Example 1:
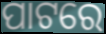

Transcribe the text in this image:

ପାଟରେ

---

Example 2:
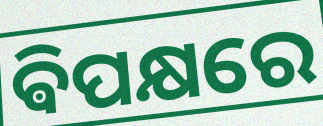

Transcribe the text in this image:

ଵିପକ୍ଷରେ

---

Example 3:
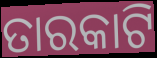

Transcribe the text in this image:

ତାରକାଟି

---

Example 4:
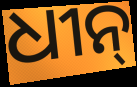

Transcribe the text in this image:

ଧୀନ୍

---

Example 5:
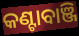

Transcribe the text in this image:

କଣ୍ଟାବାଞ୍ଜି